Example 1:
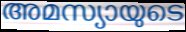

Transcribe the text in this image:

അമസ്യായുടെ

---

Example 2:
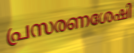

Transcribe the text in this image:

പ്രസരണശേഷി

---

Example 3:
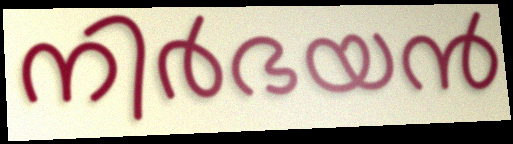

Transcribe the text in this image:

നിർഭയൻ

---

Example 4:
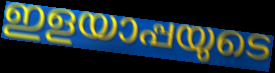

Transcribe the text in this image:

ഇളയാപ്പയുടെ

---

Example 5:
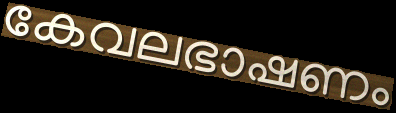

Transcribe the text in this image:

കേവലഭാഷണം